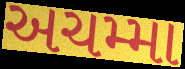
અચમ્મા